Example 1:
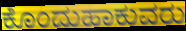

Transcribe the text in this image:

ಕೊಂದುಹಾಕುವರು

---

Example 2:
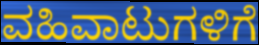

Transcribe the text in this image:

ವಹಿವಾಟುಗಳಿಗೆ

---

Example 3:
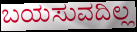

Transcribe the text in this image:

ಬಯಸುವದಿಲ್ಲ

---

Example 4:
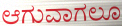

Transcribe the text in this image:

ಆಗುವಾಗಲೂ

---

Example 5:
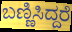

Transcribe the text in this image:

ಬಣ್ಣಿಸಿದ್ದರೆ